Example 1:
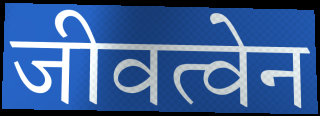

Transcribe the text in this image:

जीवत्वेन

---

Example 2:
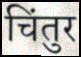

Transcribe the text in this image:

चिंतुर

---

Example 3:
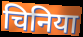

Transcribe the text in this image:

चिनिया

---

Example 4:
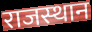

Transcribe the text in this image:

राजस्‍थान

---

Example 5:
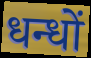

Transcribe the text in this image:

धन्धों